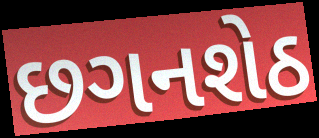
છગનશેઠ